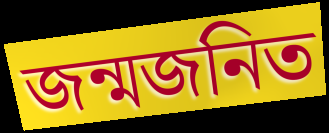
জন্মজনিত